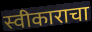
स्वीकाराचा